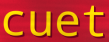
cuet